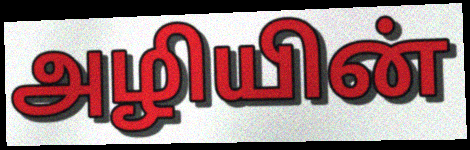
அழியின்